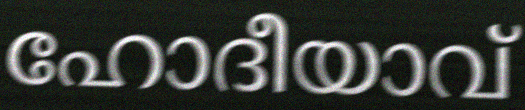
ഹോദീയാവ്